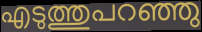
എടുത്തുപറഞ്ഞു